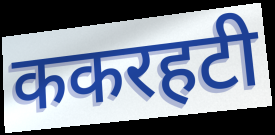
ककरहटी